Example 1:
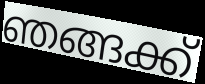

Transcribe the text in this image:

ഞങ്ങക്ക്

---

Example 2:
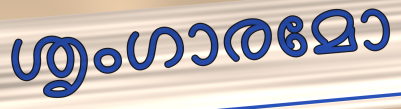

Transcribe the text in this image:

ശൃംഗാരമോ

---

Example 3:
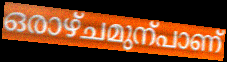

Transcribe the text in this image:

ഒരാഴ്ചമുന്പാണ്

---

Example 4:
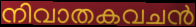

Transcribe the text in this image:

നിവാതകവചൻ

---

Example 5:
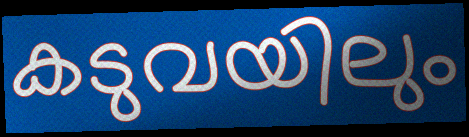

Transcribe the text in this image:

കടുവയിലും